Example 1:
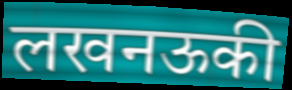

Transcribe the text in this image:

लखनऊकी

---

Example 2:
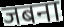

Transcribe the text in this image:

जबना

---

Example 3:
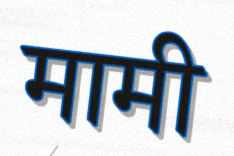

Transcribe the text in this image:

मामी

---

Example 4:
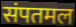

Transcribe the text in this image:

संपतमल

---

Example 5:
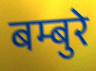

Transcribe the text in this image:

बम्बुरे